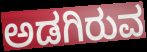
ಅಡಗಿರುವ